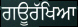
ਗਊਰੱਖਿਆ